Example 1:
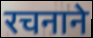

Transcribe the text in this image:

रचनाने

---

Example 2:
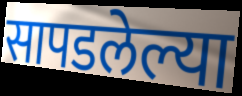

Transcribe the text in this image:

सापडलेल्‍या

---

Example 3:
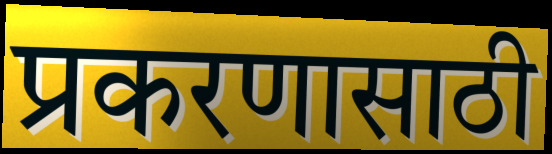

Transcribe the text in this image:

प्रकरणासाठी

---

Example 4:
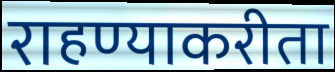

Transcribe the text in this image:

राहण्याकरीता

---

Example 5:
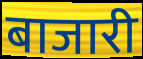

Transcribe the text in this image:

बाजारी